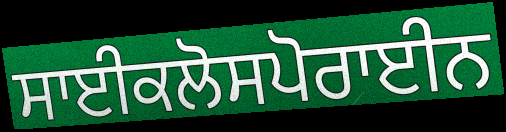
ਸਾਈਕਲੋਸਪੋਰਾਈਨ